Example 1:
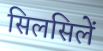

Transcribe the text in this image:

सिलसिलें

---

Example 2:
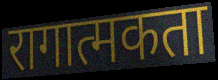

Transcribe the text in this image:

रागात्मकता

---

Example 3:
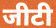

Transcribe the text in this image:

जीटी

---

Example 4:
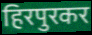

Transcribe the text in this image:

हिरपुरकर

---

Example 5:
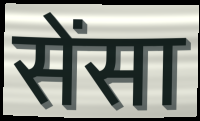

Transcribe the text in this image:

सेंसा